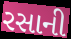
રસાની